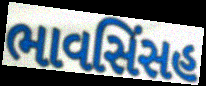
ભાવસિંસહ